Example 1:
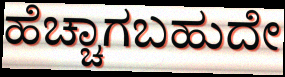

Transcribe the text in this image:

ಹೆಚ್ಚಾಗಬಹುದೇ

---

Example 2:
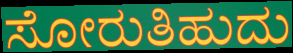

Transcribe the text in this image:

ಸೋರುತಿಹುದು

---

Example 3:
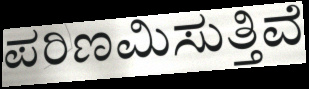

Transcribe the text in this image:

ಪರಿಣಮಿಸುತ್ತಿವೆ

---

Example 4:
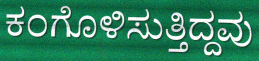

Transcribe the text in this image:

ಕಂಗೊಳಿಸುತ್ತಿದ್ದವು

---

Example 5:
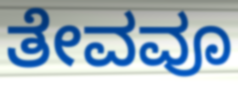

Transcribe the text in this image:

ತೇವವೂ